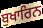
ਬੁਖਾਰਿਨ